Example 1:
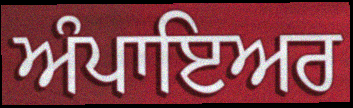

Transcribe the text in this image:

ਅੰਪਾਇਅਰ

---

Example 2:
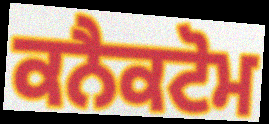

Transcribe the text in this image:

ਕਨੈਕਟੋਮ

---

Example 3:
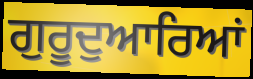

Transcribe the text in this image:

ਗੁਰੂਦੁਆਰਿਆਂ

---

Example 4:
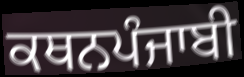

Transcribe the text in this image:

ਕਥਨਪੰਜਾਬੀ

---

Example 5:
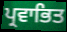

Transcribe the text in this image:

ਪ੍ਰਵਾਭਿਤ